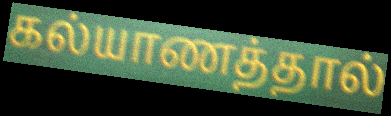
கல்யாணத்தால்